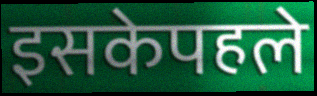
इसकेपहले